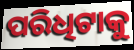
ପରିଧିଟାକୁ